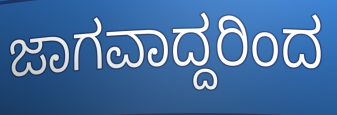
ಜಾಗವಾದ್ದರಿಂದ